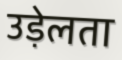
उड़ेलता